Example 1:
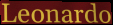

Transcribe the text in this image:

Leonardo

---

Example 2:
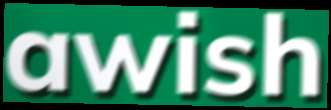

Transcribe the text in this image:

awish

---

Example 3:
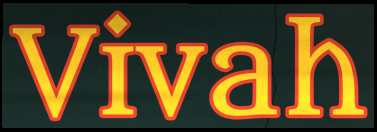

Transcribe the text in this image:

Vivah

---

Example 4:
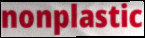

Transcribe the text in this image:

nonplastic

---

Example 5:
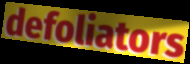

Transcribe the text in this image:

defoliators